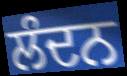
ਲੰਦਨ